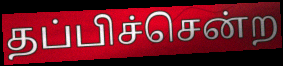
தப்பிச்சென்ற